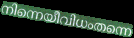
നിന്നെയീവിധംതന്നെ